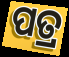
ପତ୍ର